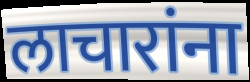
लाचारांना